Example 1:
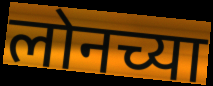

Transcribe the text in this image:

लोनच्या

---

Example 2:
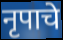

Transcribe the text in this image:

नृपाचे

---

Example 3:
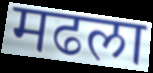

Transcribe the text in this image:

मढला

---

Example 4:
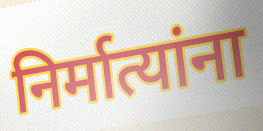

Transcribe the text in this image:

निर्मात्यांना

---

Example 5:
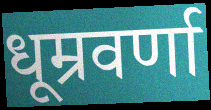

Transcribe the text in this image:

धूम्रवर्णा